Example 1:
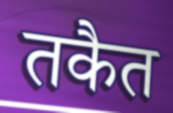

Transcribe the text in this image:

तकैत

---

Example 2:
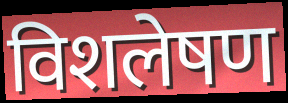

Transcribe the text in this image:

विशलेषण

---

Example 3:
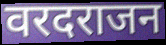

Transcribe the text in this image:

वरदराजन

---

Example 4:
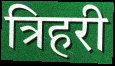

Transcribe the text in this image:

त्रिहरी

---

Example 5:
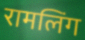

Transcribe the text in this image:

रामलिंग